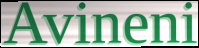
Avineni